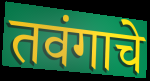
तवंगाचे